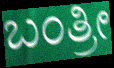
ಬಂತ್ರೀ